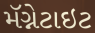
મૅગ્નેટાઇટ